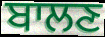
ਬਾਲਣ